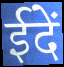
ईदें